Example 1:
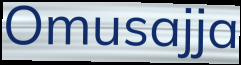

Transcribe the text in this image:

Omusajja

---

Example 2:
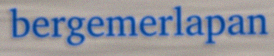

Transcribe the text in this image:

bergemerlapan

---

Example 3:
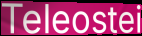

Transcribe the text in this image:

Teleostei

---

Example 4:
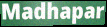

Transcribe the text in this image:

Madhapar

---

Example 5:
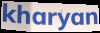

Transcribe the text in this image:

kharyan